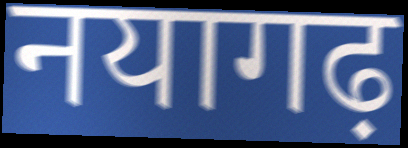
नयागढ़